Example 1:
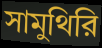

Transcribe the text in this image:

সামুথিরি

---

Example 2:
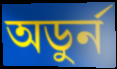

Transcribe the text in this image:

অডুর্ন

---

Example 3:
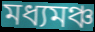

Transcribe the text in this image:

মধ্যমঞ্চ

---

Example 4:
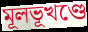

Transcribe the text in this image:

মূলভূখণ্ডে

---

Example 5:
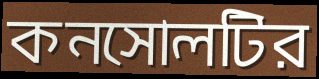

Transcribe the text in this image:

কনসোলটির